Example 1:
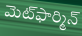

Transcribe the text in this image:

మెట్‌ఫార్మిన్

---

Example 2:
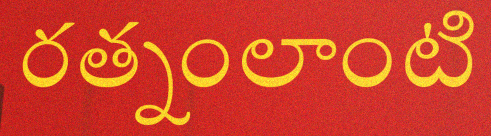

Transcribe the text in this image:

రత్నంలాంటి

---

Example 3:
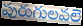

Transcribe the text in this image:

పురుగులవలె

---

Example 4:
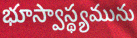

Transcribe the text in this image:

భూస్వాస్థ్యమును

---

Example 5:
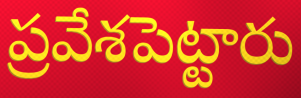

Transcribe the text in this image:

ప్రవేశపెట్టారు